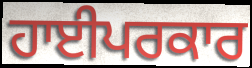
ਹਾਈਪਰਕਾਰ